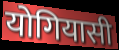
योगियासी